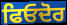
ਫਿਓਦੋਰ